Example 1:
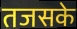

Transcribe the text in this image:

तजसके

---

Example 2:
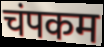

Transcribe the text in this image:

चंपकम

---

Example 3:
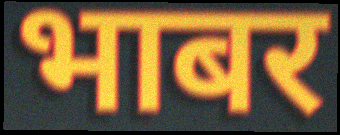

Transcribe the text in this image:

भाबर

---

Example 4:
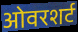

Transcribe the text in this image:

ओवरशर्ट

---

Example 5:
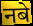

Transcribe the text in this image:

नबे